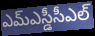
ఎమ్ఎస్డీసీఎల్